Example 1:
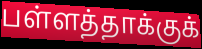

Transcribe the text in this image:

பள்ளத்தாக்குக்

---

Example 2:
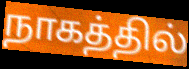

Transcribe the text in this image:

நாகத்தில்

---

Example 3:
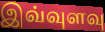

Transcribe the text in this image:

இவ்வுளவு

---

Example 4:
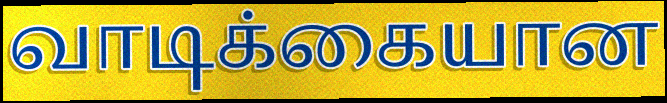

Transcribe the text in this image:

வாடிக்கையான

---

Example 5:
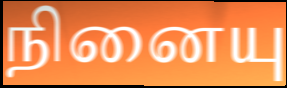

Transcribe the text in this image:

நினையு